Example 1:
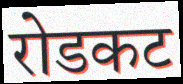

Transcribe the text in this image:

रोडकट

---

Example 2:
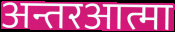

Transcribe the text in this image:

अन्तरआत्मा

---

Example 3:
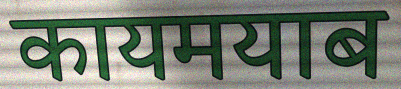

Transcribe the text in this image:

कायमयाब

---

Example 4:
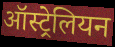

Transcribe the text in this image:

ऑस्ट्रेलियन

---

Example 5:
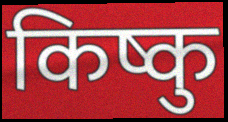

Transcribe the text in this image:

किष्कु